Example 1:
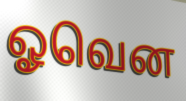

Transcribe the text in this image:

ஓவென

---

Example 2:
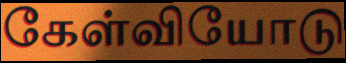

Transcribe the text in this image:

கேள்வியோடு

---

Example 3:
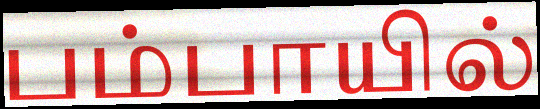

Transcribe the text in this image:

பம்பாயில்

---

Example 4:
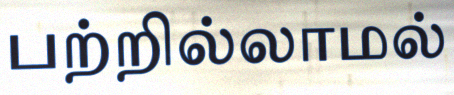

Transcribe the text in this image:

பற்றில்லாமல்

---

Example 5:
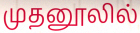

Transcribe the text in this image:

முதனூலில்